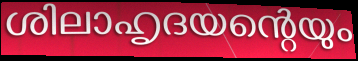
ശിലാഹൃദയന്റെയും